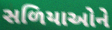
સળિયાઓને